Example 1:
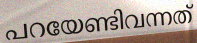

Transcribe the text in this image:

പറയേണ്ടിവന്നത്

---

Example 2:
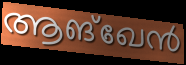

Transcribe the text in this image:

ആങ്ഖേൻ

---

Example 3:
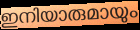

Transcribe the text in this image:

ഇനിയാരുമായും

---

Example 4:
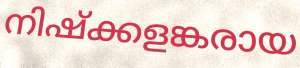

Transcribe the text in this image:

നിഷ്ക്കളങ്കരായ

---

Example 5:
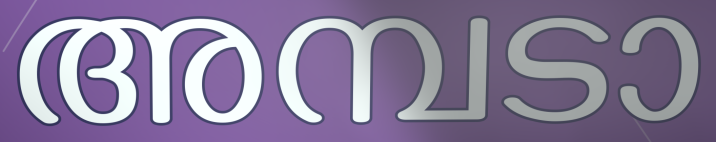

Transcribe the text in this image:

അമ്പടാ